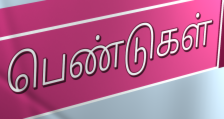
பெண்டுகள்